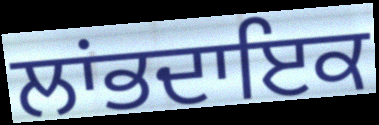
ਲਾਂਭਦਾਇਕ